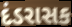
દંડરાસક